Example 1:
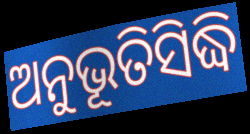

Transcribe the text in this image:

ଅନୁଭୂତିସିଦ୍ଧି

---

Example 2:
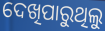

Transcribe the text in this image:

ଦେଖିପାରୁଥିଲୁ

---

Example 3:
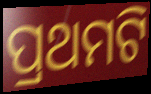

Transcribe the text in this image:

ପ୍ରଥମଟି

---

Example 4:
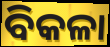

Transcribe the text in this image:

ବିକଳା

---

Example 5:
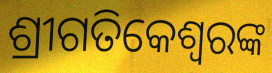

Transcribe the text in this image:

ଶ୍ରୀଗତିକେଶ୍ବରଙ୍କ